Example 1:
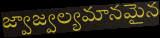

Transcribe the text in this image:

జ్వాజ్వల్యమానమైన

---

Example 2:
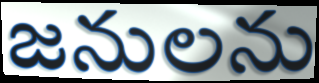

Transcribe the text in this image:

జనులను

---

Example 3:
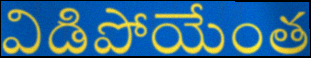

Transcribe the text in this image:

విడిపోయేంత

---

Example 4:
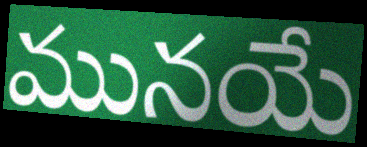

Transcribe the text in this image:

మునయే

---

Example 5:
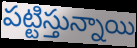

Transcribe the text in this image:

పట్టిస్తున్నాయి